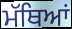
ਮੱਥਿਆਂ